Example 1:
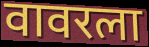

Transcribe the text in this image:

वावरला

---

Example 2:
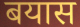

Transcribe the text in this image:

बयास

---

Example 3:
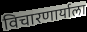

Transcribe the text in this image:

विचारणार्याला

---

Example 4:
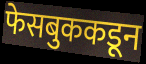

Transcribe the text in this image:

फेसबुककडून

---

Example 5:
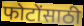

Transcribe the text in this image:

फोटोंसाठी